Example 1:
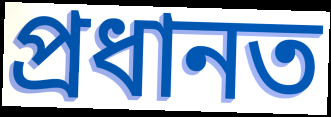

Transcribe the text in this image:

প্ৰধানত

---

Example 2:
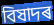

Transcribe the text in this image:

বিষাদৰ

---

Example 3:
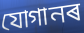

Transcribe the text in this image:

যোগানৰ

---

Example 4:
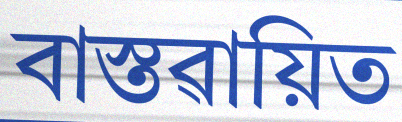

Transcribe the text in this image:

বাস্তৱায়িত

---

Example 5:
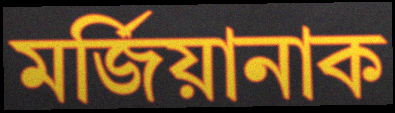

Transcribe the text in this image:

মৰ্জিয়ানাক